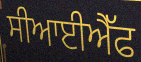
ਸੀਆਈਐੱਫ